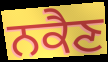
ਨਕੈਣ